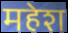
महेश